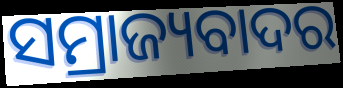
ସମ୍ରାଜ୍ୟବାଦର